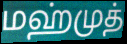
மஹ்முத்